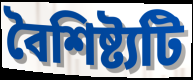
বৈশিষ্ট্যটি